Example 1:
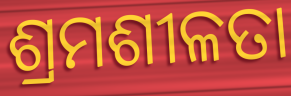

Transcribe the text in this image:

ଶ୍ରମଶୀଳତା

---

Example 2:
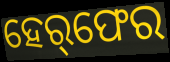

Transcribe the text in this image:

ହେର୍‌ଫେର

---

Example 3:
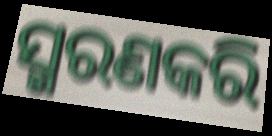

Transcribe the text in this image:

ସ୍ମରଣକରି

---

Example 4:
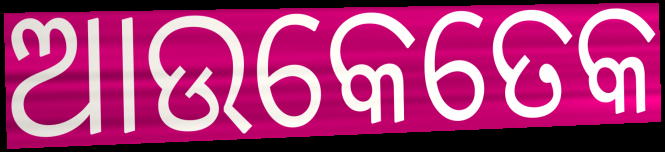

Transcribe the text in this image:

ଆଉକେତେକ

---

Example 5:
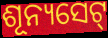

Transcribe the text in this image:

ଶୂନ୍ୟସେଟ୍